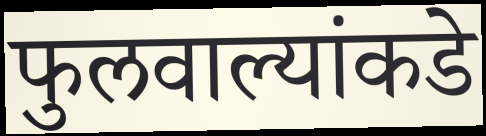
फुलवाल्यांकडे